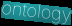
ontology